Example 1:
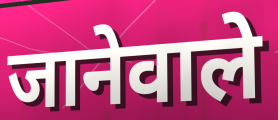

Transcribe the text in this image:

जानेवाले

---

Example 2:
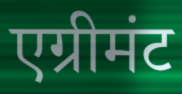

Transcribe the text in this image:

एग्रीमंट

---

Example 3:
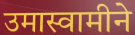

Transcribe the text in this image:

उमास्वामीने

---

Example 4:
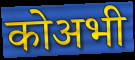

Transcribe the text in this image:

कोअभी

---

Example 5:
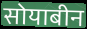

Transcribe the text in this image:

सोयाबीन